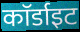
कॉर्डाइट